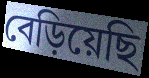
বেড়িয়েছি